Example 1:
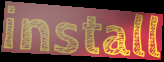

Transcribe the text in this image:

install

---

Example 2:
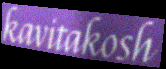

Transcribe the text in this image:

kavitakosh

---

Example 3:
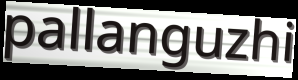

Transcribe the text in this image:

pallanguzhi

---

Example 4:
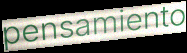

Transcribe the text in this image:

pensamiento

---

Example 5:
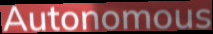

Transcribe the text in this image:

Autonomous